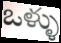
ఒళ్ళు